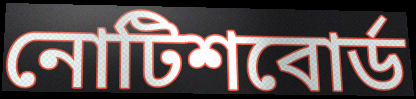
নোটিশবোর্ড